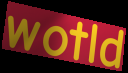
wotld